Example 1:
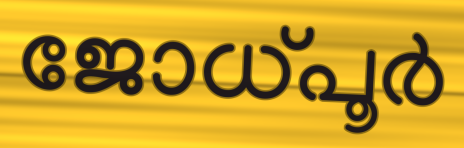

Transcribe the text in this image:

ജോധ്പൂർ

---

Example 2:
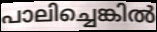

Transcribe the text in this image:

പാലിച്ചെങ്കിൽ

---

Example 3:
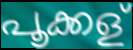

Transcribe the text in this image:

പൂക്കള്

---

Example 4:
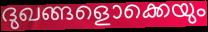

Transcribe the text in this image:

ദുഖങ്ങളൊക്കെയും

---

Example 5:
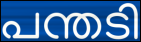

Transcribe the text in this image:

പന്തടി